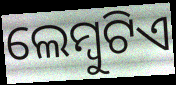
ଲେମ୍ବୁଟିଏ